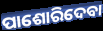
ପାଶୋରିଦେବା